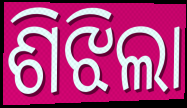
ଶିଝିଲା